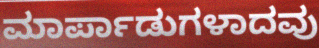
ಮಾರ್ಪಾಡುಗಳಾದವು